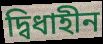
দ্বিধাহীন